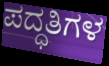
ಪದ್ಧತಿಗಳ